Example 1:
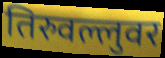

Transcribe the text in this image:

तिरुवल्लुवर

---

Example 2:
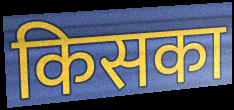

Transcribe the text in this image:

किसका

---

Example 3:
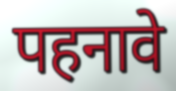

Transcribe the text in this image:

पहनावे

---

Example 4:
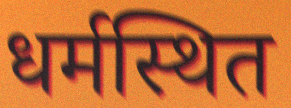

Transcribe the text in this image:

धर्मस्थित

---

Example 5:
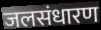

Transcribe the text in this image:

जलसंधारण